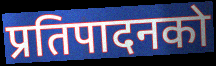
प्रतिपादनको